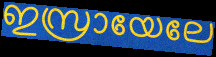
ഇസ്രായേലേ